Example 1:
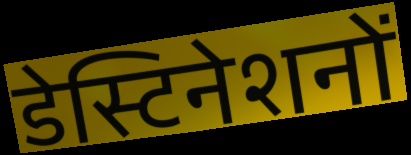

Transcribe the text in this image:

डेस्टिनेशनों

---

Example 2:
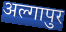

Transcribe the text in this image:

अल्गापुर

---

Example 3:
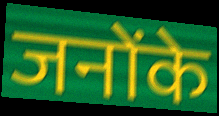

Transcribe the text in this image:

जनोंके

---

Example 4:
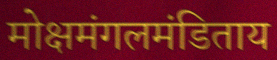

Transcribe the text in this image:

मोक्षमंगलमंडिताय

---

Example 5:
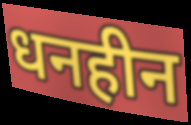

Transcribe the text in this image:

धनहीन